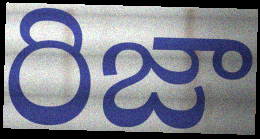
రిజా